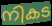
നികട